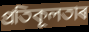
প্ৰতিকূলতাৰ